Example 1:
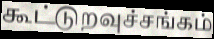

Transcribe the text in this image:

கூட்டுறவுச்சங்கம்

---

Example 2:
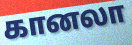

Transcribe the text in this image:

கானலா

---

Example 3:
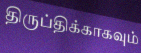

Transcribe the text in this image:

திருப்திக்காகவும்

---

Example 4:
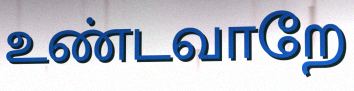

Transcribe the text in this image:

உண்டவாறே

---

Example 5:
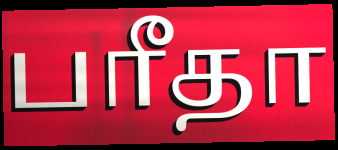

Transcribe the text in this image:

பரீதா